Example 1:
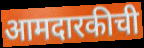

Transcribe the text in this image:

आमदारकीची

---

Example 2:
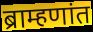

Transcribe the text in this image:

ब्राम्हणांत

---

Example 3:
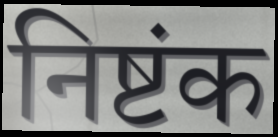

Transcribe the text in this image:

निष्टंक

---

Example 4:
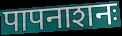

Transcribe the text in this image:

पापनाशनः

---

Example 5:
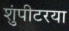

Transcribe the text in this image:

शुंपीटरया